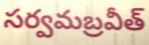
సర్వమబ్రవీత్